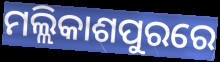
ମଲ୍ଲିକାଶପୁରରେ